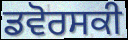
ਡਵੋਰਸਕੀ